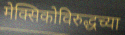
मेक्सिकोविरुद्धच्या